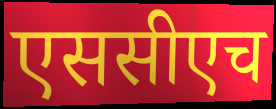
एससीएच